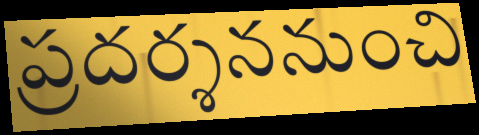
ప్రదర్శననుంచి